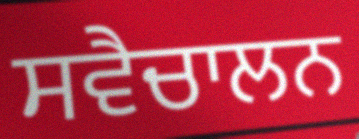
ਸਵੈਚਾਲਨ